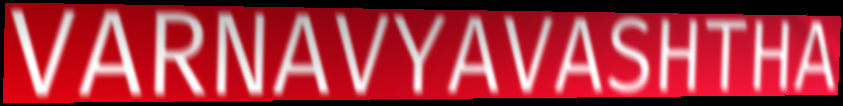
VARNAVYAVASHTHA